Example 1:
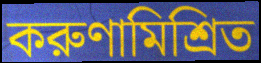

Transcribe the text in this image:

করুণামিশ্রিত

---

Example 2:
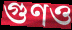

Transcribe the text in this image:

গুণও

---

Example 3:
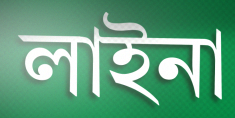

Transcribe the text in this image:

লাইনা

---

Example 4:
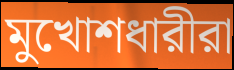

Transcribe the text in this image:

মুখোশধারীরা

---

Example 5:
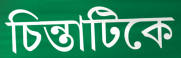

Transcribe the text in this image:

চিন্তাটিকে